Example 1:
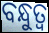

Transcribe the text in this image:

ବନ୍ଧୁତ୍ୱ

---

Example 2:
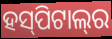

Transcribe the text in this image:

ହସ୍‍ପିଟାଲ୍‍ର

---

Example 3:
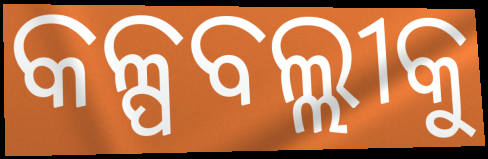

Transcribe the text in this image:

କଳ୍ପବଲ୍ଲୀକୁ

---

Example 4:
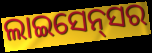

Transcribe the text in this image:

ଲାଇସେନ୍‌ସର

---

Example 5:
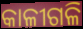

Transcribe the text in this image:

କାଳୀଗଳି